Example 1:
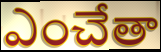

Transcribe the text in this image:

ఎంచేతా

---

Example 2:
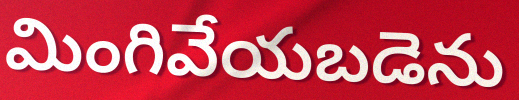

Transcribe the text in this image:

మింగివేయబడెను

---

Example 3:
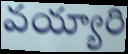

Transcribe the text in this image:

వయ్యారి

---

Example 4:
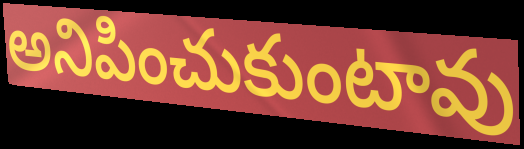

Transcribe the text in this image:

అనిపించుకుంటావు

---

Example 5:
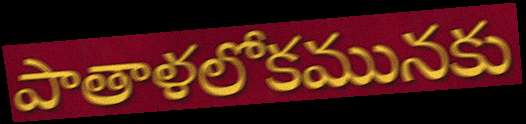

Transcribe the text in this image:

పాతాళలోకమునకు